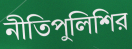
নীতিপুলিশির